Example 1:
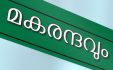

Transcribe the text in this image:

മകരന്ദവും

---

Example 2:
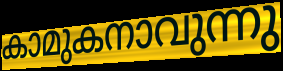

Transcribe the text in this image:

കാമുകനാവുന്നു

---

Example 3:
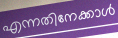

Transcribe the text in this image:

എന്നതിനേക്കാൾ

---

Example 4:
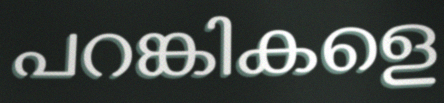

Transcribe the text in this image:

പറങ്കികളെ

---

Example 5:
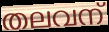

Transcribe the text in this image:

തലവന്